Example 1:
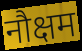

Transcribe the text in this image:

नौक्षम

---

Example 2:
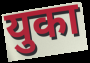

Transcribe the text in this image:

युका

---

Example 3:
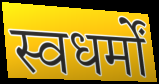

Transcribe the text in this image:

स्वधर्मों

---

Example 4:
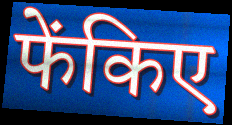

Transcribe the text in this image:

फेंकिए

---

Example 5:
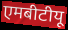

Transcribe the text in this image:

एमबीटीयू